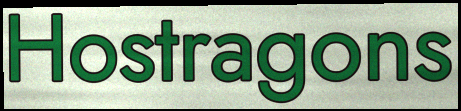
Hostragons